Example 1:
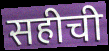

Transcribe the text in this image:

सहीची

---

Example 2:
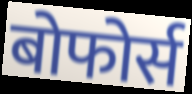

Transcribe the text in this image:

बोफोर्स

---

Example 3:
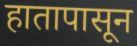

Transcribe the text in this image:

हातापासून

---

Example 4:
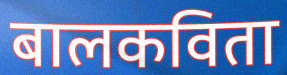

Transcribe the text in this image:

बालकविता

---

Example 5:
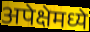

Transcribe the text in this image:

अपेक्षेमध्ये